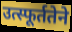
उत्स्फूर्ततेने